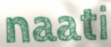
naati